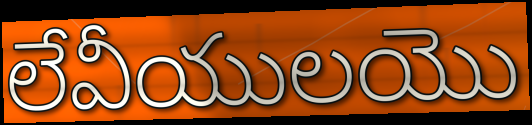
లేవీయులయొ